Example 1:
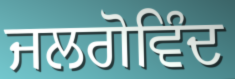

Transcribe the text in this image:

ਜਲਗੋਵਿੰਦ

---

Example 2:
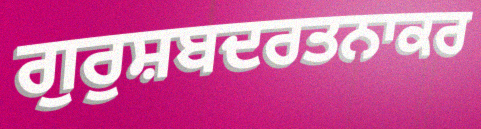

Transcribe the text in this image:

ਗੁਰੁਸ਼ਬਦਰਤਨਾਕਰ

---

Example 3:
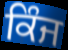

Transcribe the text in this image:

ਕਿੰਜ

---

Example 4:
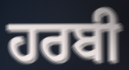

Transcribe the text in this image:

ਹਰਬੀ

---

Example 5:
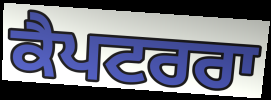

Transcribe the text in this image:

ਕੈਪਟਰਰਾ